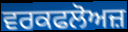
ਵਰਕਫਲੋਅਜ਼